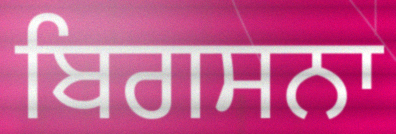
ਬਿਗਸਨਾ